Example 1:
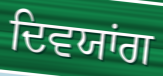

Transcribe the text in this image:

ਦਿਵਯਾਂਗ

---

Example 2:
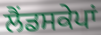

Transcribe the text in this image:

ਲੈਂਡਸਕੇਪਾਂ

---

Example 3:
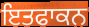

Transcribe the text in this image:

ਇਤਫਾਕਨ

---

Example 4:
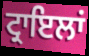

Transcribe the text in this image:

ਟ੍ਰਾਇਲਾਂ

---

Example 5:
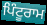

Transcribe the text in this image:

ਪਿੰਟੂਰਾਮ